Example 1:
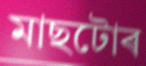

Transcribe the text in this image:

মাছটোৰ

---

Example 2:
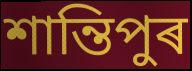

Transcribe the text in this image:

শান্তিপুৰ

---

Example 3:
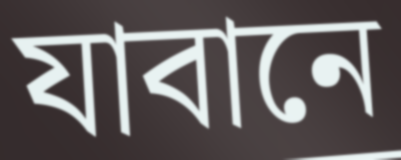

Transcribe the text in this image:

যাবানে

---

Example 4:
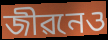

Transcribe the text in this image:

জীৱনেও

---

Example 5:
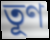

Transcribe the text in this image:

তূণ